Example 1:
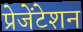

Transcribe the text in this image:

प्रेजेंटेशन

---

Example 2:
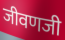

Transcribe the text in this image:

जीवणजी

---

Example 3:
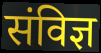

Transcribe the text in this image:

संविज्ञ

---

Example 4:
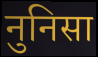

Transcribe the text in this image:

नुनिसा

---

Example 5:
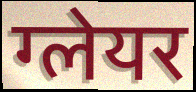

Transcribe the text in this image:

ग्लेयर